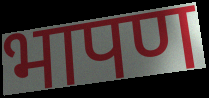
भापण